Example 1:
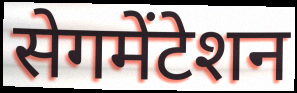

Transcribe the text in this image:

सेगमेंटेशन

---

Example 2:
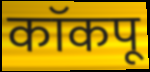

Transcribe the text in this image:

कॉकपू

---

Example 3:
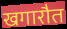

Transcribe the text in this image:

खगारौत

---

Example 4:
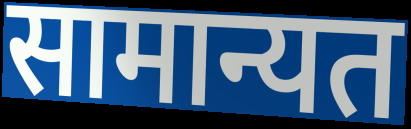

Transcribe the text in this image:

सामान्यत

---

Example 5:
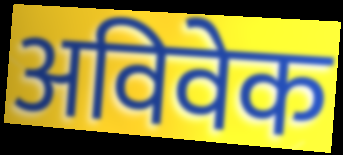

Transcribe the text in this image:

अविवेक